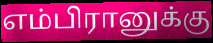
எம்பிரானுக்கு